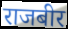
राजबीर